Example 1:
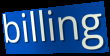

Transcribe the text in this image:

billing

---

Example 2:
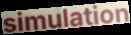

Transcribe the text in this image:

simulation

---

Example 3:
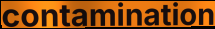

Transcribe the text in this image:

contamination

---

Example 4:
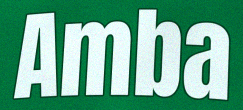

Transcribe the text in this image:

Amba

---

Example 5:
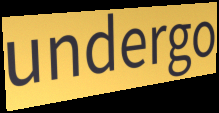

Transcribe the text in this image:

undergo